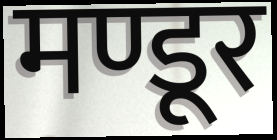
मण्डूर